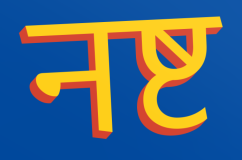
नष्ट